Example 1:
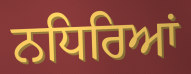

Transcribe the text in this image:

ਨਧਿਰਿਆਂ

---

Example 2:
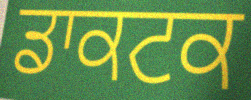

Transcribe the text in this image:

ਡਾਕਟਕ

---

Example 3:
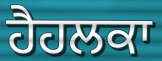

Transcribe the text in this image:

ਹੈਹਲਕਾ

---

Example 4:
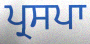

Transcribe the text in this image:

ਪ੍ਰਸਪਾ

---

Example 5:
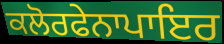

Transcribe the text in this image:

ਕਲੋਰਫੇਨਾਪਾਇਰ